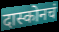
दास्कोनचं